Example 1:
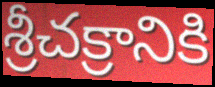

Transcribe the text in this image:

శ్రీచక్రానికి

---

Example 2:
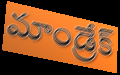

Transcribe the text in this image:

మాండ్రేక్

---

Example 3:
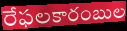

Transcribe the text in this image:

రేఫలకారంబుల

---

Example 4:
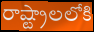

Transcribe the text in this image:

రాష్ట్రాలలోకి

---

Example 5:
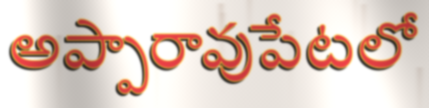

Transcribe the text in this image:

అప్పారావుపేటలో